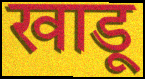
खाडू